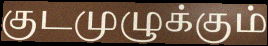
குடமுழுக்கும்